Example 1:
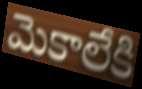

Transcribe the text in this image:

మెకాలేకి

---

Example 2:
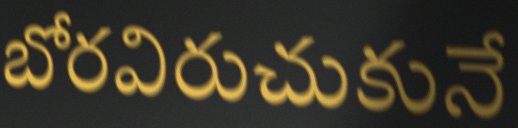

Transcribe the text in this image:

బోరవిరుచుకునే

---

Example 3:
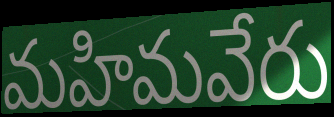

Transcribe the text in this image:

మహిమవేరు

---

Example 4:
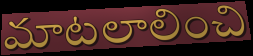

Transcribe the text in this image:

మాటలాలించి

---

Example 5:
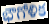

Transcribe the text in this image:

భౌగోళిక